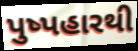
પુષ્પહારથી